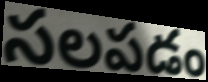
సలపడం